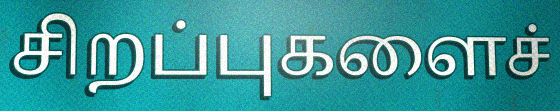
சிறப்புகளைச்